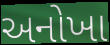
અનોખા